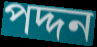
পদ্দন